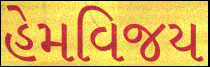
હેમવિજય